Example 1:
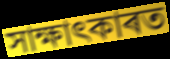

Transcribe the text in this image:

সাক্ষাৎকাৰত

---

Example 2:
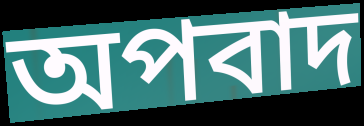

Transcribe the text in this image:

অপবাদ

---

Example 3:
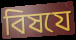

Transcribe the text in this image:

বিষযে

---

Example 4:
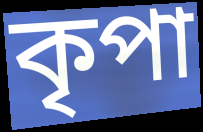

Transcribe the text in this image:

কৃপা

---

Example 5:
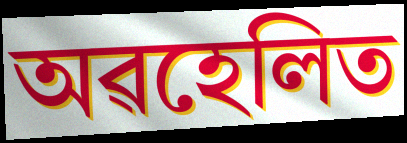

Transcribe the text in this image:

অৱহেলিত